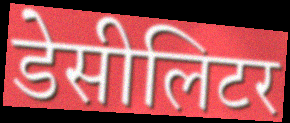
डेसीलिटर